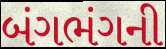
બંગભંગની